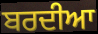
ਬਰਦੀਆ